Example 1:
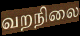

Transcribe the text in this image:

வறநிலை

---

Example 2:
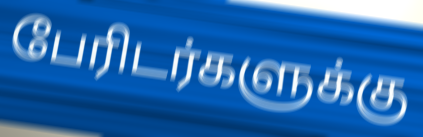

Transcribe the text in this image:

பேரிடர்களுக்கு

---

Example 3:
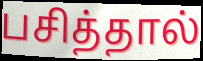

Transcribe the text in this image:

பசித்தால்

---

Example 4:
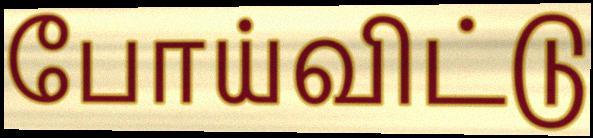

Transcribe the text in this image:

போய்விட்டு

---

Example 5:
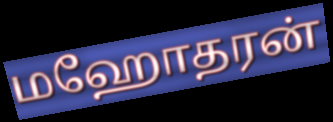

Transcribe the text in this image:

மஹோதரன்